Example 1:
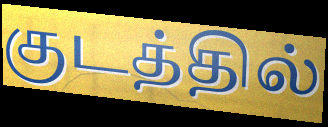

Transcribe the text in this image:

குடத்தில்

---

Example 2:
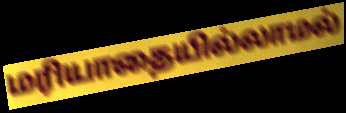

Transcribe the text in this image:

மரியாதையில்லாமல்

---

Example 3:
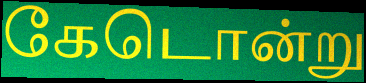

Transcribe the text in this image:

கேடொன்று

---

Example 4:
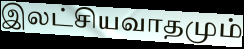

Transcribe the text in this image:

இலட்சியவாதமும்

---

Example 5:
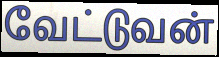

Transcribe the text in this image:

வேட்டுவன்